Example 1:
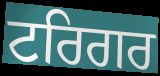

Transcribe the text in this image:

ਟਰਿਗਰ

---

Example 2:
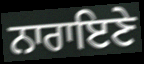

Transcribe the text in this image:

ਨਾਰਾਇਣੇ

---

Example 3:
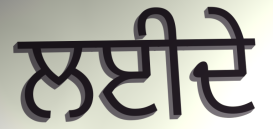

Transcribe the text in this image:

ਲਈਦੇ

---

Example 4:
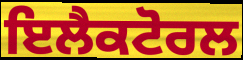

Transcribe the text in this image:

ਇਲੈਕਟੋਰਲ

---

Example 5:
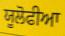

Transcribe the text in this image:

ਯੂਲੋਫੀਆ